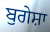
ਬੁਗੇਸ਼ਾ